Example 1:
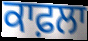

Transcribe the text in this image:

ਕਾਫ਼ਲਾ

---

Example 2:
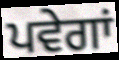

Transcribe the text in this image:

ਪਵੇਗਾਂ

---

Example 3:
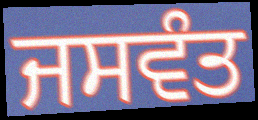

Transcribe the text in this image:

ਜਸਵੰਤ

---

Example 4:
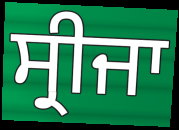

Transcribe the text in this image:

ਸ੍ਰੀਜਾ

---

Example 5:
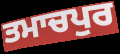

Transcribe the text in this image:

ਤਮਾਚਪੁਰ